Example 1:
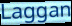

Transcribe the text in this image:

Laggan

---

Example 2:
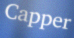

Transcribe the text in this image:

Capper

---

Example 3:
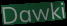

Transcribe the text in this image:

Dawki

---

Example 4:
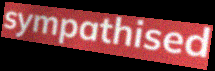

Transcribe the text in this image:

sympathised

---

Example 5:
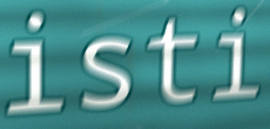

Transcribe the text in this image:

isti